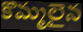
కొమ్మలైన